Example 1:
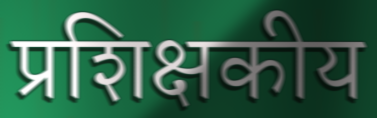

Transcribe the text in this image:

प्रशिक्षकीय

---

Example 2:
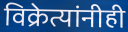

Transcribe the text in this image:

विक्रेत्यांनीही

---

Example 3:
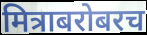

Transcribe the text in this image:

मित्राबरोबरच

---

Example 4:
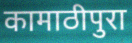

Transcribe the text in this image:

कामाठीपुरा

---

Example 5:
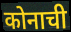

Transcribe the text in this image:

कोनाची